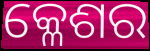
କ୍ଳେଶର